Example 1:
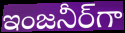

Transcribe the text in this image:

ఇంజనీర్‌గా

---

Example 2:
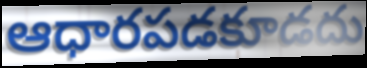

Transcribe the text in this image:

ఆధారపడకూడదు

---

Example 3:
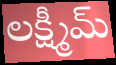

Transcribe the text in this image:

లక్ష్మీమ్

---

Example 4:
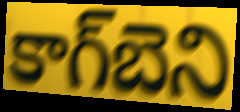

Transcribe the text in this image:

కాగ్‌బెని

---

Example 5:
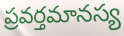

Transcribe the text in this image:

ప్రవర్తమానస్య